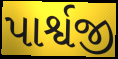
પાર્શ્વજી